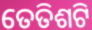
ତେତିଶଟି